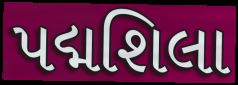
પદ્મશિલા